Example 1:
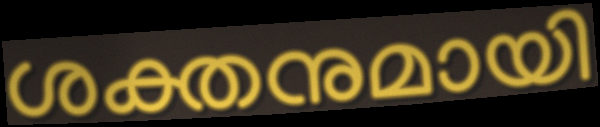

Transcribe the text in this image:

ശക്തനുമായി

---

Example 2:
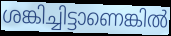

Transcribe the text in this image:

ശങ്കിച്ചിട്ടാണെങ്കിൽ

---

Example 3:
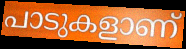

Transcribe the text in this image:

പാടുകളാണ്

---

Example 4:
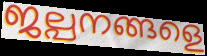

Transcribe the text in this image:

ജല്പനങ്ങളെ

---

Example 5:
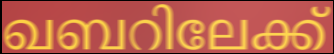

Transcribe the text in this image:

ഖബറിലേക്ക്